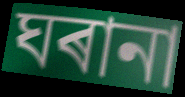
ঘৰানা